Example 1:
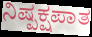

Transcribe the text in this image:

ನಿಷ್ಪಕ್ಷಪಾತ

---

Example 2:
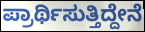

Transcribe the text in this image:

ಪ್ರಾರ್ಥಿಸುತ್ತಿದ್ದೇನೆ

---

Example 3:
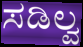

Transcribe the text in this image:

ಸಡಿಲ್ವ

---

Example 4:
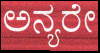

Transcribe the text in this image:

ಅನ್ಯರೇ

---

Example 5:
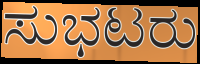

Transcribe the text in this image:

ಸುಭಟರು